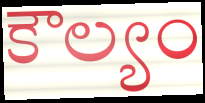
కౌల్యం